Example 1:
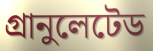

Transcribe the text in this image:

গ্রানুলেটেড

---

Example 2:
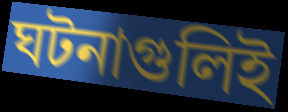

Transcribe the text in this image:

ঘটনাগুলিই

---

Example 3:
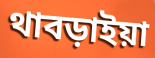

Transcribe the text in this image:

থাবড়াইয়া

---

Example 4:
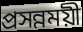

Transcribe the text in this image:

প্রসন্নময়ী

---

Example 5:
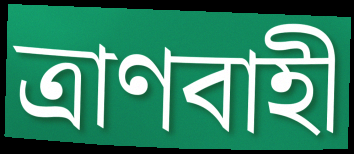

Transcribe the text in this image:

ত্রাণবাহী